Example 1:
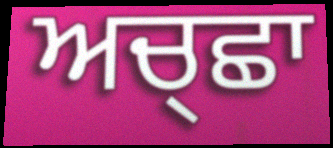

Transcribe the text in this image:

ਅਚ੍ਛਾ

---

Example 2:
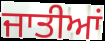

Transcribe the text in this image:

ਜਾਤੀਆਂ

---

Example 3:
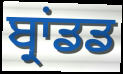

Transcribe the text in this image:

ਬ੍ਰਾਂਡਡ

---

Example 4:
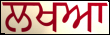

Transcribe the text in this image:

ਲਖਆ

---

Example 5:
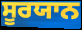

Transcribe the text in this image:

ਸੂਰਯਾਨ